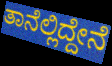
ತಾನೆಲ್ಲಿದ್ದೇನೆ